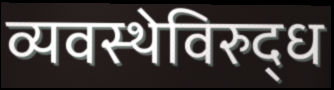
व्यवस्थेविरुद्ध